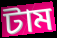
টাম